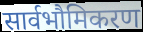
सार्वभौमिकरण